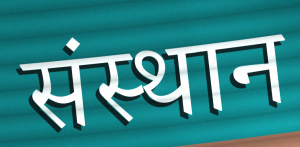
संस्थान